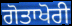
ਗੋਤਾਖੋਰੀ